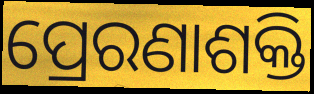
ପ୍ରେରଣାଶକ୍ତି